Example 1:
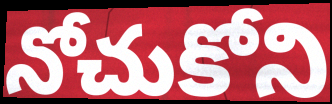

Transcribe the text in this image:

నోచుకోని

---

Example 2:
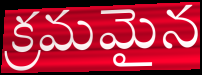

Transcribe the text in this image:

క్రమమైన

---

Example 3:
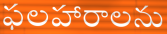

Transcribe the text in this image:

ఫలహారాలను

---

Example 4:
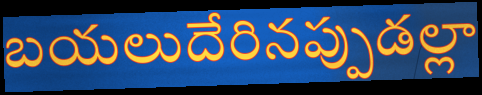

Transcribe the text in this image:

బయలుదేరినప్పుడల్లా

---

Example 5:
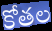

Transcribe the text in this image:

కోతల